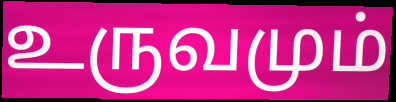
உருவமும்